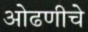
ओढणीचे